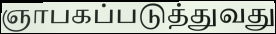
ஞாபகப்படுத்துவது